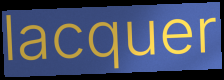
lacquer